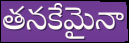
తనకేమైనా